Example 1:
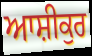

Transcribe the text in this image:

ਆਸ਼ੀਕੁਰ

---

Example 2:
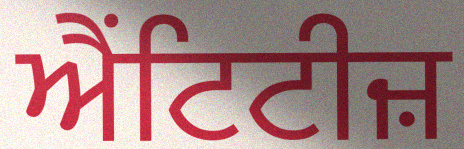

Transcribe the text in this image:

ਐਂਟਿਟੀਜ਼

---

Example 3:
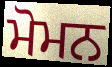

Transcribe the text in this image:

ਮੋਮਨ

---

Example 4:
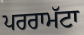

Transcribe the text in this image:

ਪਰਰਾਮੱਟਾ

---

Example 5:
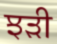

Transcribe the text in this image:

ਝੜੀ